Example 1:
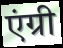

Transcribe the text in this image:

एंग्री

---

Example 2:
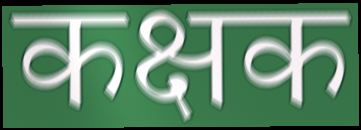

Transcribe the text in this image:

कक्षक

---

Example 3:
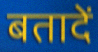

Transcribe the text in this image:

बतादें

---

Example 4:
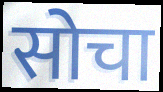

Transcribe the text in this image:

सोचा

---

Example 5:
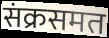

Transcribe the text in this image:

संक्रसमत